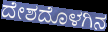
ದೇಶದೊಳಗಿನ